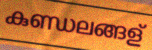
കുണ്ഡലങ്ങള്